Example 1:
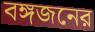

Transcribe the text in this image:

বঙ্গজনের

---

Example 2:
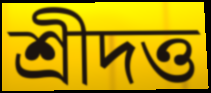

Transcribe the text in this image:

শ্রীদত্ত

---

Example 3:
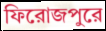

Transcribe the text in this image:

ফিরোজপুরে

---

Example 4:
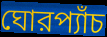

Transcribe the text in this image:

ঘোরপ্যাঁচ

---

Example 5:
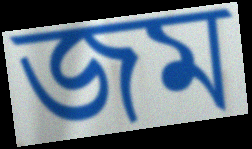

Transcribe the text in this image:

জম